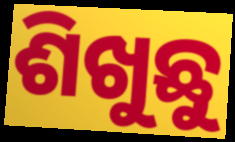
ଶିଖୁଛୁ